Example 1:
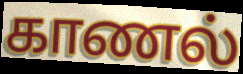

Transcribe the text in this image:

காணல்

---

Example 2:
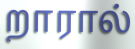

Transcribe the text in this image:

றாரால்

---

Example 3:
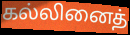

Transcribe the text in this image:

கல்லினைத்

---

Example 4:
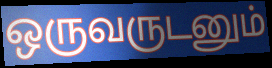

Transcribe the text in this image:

ஒருவருடனும்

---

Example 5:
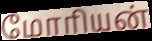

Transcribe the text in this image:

மோரியன்